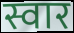
स्‍वार